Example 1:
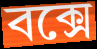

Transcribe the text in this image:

বক্সে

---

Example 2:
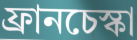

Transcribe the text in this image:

ফ্রানচেস্কা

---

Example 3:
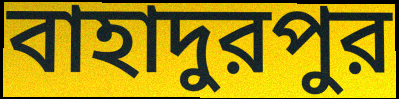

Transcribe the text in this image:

বাহাদুরপুর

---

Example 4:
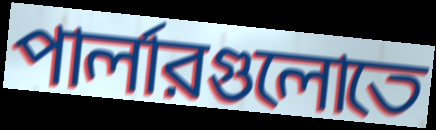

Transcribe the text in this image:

পার্লারগুলোতে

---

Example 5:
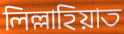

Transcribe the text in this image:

লিল্লাহিয়াত